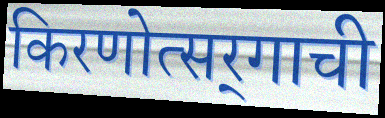
किरणोत्सर्गाची